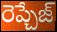
రెప్చేజ్